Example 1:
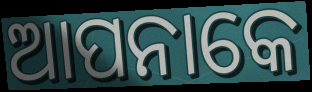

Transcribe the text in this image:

ଆପନାକେ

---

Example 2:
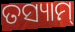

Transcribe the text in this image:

ତସ୍ୟାମ୍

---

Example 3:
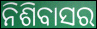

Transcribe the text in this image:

ନିଶିବାସର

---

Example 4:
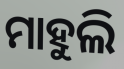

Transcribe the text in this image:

ମାହୁଲି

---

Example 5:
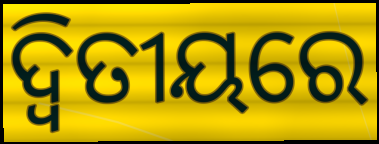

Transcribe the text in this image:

ଦ୍ଵିତୀୟରେ